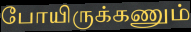
போயிருக்கணும்